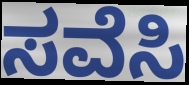
ಸವೆಸಿ